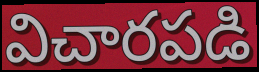
విచారపడి